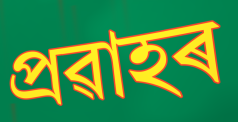
প্ৰৱাহৰ